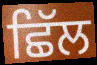
ਛਿੱਲ